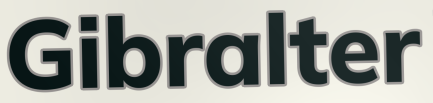
Gibralter